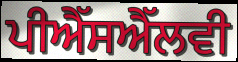
ਪੀਐੱਸਐੱਲਵੀ